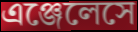
এঞ্জেলেসে